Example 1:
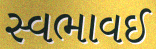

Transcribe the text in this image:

સ્વભાવઈ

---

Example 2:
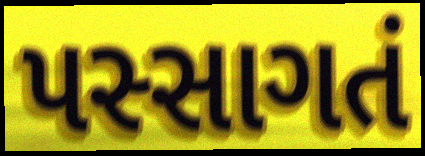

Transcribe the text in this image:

પસ્સાગતં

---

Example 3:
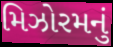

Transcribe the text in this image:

મિઝોરમનું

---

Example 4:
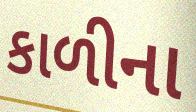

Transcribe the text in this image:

કાળીના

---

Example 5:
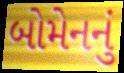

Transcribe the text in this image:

બોમેનનું